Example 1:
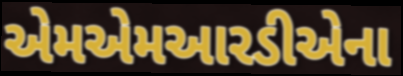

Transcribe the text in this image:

એમએમઆરડીએના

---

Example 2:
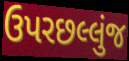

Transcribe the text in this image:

ઉપરછલ્લુંજ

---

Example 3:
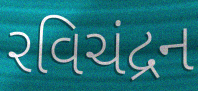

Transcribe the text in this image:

રવિચંદ્રન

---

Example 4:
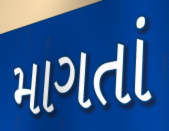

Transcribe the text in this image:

માગતાં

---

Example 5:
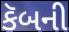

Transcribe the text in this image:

કૅબની